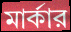
মার্কার